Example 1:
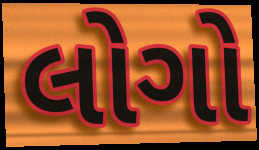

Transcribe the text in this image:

લોગો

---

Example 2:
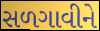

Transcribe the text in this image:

સળગાવીને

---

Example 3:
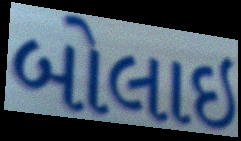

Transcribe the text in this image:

બોલાઇ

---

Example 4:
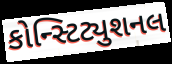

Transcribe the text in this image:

કોન્સ્ટિટ્યુશનલ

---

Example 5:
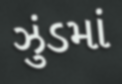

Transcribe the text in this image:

ઝુંડમાં